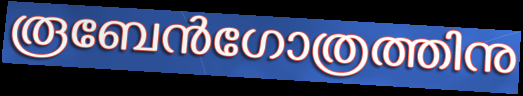
രൂബേൻഗോത്രത്തിനു